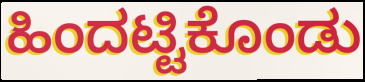
ಹಿಂದಟ್ಟಿಕೊಂಡು